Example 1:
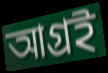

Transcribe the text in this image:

আগ্রই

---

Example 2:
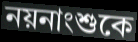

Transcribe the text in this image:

নয়নাংশুকে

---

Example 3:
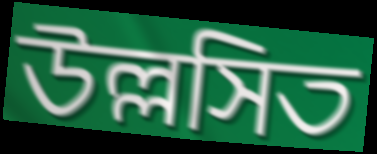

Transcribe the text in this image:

উল্লসিত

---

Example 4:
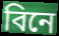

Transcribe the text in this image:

বিনে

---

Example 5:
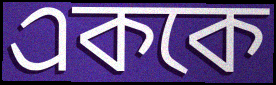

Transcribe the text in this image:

এককে